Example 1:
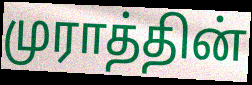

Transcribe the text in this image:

முராத்தின்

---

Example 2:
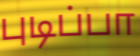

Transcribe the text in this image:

புடிப்பா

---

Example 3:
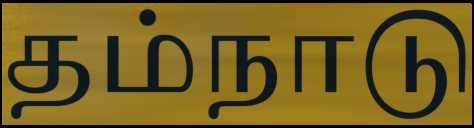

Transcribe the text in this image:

தம்நாடு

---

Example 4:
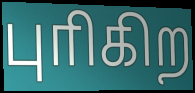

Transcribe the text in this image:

புரிகிற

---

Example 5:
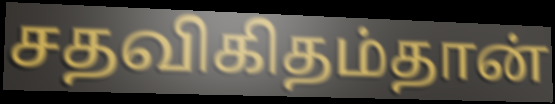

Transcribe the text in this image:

சதவிகிதம்தான்